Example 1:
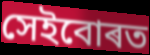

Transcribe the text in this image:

সেইবোৰত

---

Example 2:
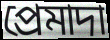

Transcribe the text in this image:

প্ৰেমাদা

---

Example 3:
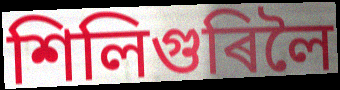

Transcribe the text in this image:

শিলিগুৰিলৈ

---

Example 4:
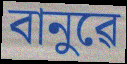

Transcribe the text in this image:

বানুৱে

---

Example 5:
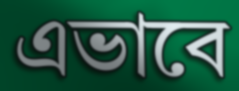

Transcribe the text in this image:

এভাবে